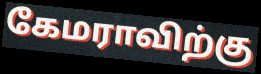
கேமராவிற்கு